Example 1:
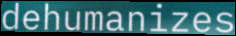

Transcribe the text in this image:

dehumanizes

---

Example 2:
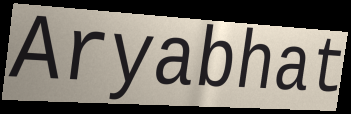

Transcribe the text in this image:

Aryabhat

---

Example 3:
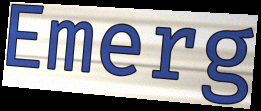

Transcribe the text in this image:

Emerg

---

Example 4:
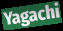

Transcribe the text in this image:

Yagachi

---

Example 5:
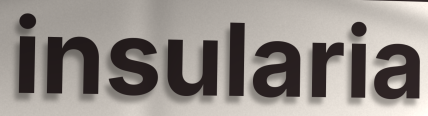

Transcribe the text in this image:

insularia